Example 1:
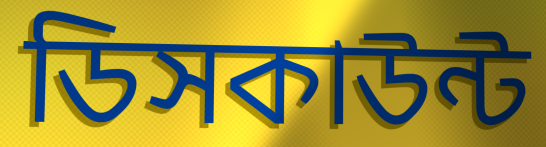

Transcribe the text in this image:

ডিসকাউন্ট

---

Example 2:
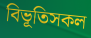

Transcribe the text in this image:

বিভূতিসকল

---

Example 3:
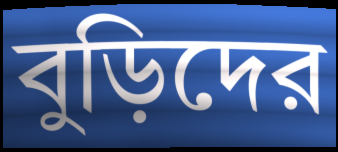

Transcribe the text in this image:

বুড়িদের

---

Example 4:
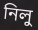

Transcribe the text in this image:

নিলু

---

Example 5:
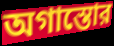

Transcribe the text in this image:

অগাস্তোর